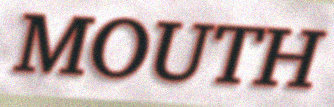
MOUTH